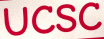
UCSC